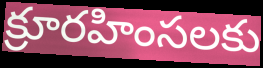
క్రూరహింసలకు